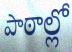
పాఠాల్లో